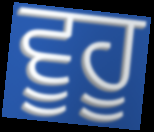
ਵੂਹੂ